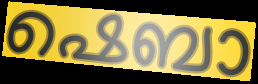
ഷെബാ